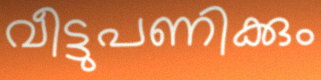
വീട്ടുപണിക്കും